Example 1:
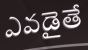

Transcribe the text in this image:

ఎవడైతే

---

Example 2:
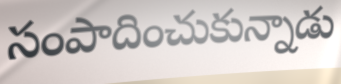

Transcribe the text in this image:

సంపాదించుకున్నాడు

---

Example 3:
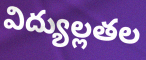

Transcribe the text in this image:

విద్యుల్లతల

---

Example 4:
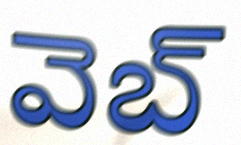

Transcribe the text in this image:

వెబ్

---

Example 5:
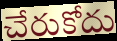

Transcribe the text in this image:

చేరుకోదు